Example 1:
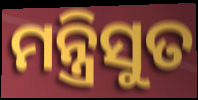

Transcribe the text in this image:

ମନ୍ତ୍ରିସୁତ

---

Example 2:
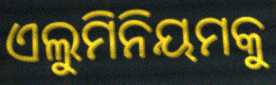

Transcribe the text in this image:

ଏଲୁମିନିୟମକୁ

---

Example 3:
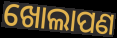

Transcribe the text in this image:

ଖୋଲାପଣ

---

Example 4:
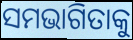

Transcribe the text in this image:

ସମଭାଗିତାକୁ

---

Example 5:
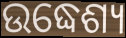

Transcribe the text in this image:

ଉଦ୍ଧେଶ୍ୟ